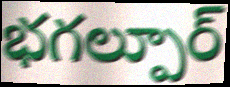
భగల్పూర్